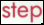
step